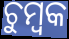
ଚୁମ୍ବକ